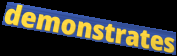
demonstrates